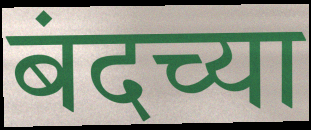
बंदच्या